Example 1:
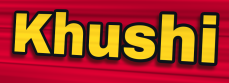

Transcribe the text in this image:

Khushi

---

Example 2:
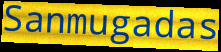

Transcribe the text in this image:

Sanmugadas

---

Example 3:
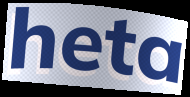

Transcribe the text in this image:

heta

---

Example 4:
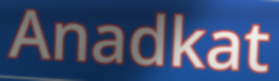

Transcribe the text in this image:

Anadkat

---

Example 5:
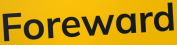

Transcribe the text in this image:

Foreward